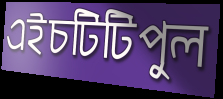
এইচটিটিপুল